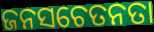
ଜନସଚେତନତା